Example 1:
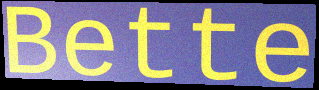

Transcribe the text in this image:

Bette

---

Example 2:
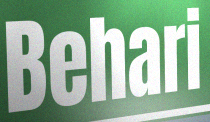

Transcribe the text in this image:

Behari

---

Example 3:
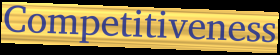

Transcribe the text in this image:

Competitiveness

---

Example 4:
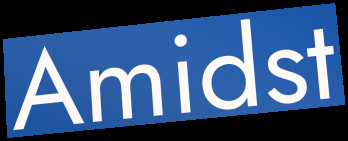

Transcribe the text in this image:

Amidst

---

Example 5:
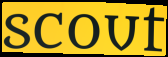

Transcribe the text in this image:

scout